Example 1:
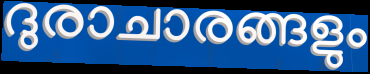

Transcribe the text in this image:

ദുരാചാരങ്ങളും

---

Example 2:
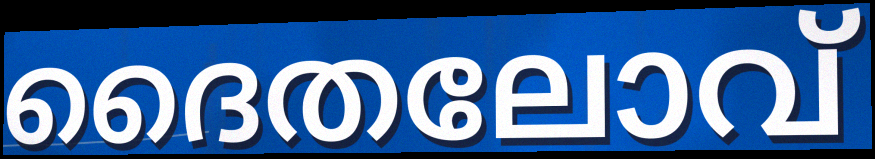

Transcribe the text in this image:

ദൈതലോവ്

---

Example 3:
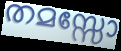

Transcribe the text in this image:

തമസ്സോ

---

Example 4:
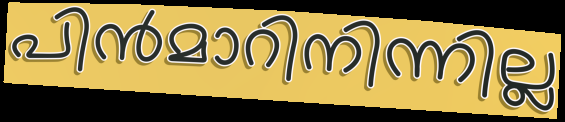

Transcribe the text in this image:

പിൻമാറിനിന്നില്ല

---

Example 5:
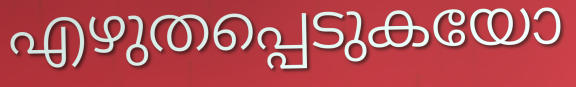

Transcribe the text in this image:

എഴുതപ്പെടുകയോ